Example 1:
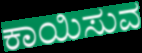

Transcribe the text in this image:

ಕಾಯಿಸುವ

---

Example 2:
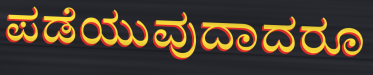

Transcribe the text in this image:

ಪಡೆಯುವುದಾದರೂ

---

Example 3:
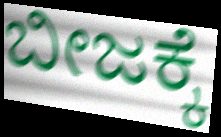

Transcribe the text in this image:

ಬೀಜಕ್ಕೆ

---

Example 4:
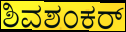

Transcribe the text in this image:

ಶಿವಶಂಕರ್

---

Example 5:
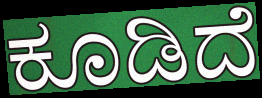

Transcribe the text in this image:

ಕೂಡಿದೆ